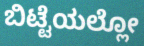
ಬಿಟ್ಟೆಯಲ್ಲೋ